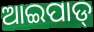
ଆଇପାଡ୍